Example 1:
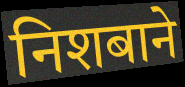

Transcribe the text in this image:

निशबाने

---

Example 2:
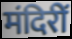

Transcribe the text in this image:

मंदिरीं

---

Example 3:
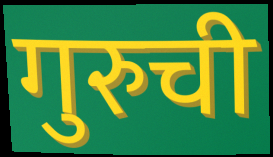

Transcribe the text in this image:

गुरुची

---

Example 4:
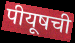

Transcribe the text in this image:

पीयूषची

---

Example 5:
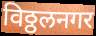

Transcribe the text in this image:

विठ्ठलनगर